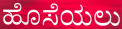
ಹೊಸೆಯಲು